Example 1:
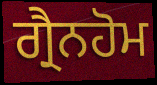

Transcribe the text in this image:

ਗ੍ਰੈਨਹੋਮ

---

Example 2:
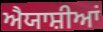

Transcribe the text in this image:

ਐਯਾਸ਼ੀਆਂ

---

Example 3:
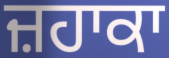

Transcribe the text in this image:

ਜ਼ਹਾਕਾ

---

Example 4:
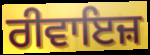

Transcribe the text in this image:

ਰੀਵਾਇਜ਼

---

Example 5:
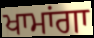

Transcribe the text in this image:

ਖਾਮਾਂਗਾ